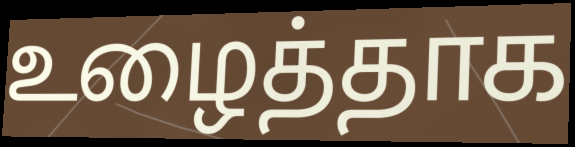
உழைத்தாக